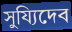
সুয্যিদেব